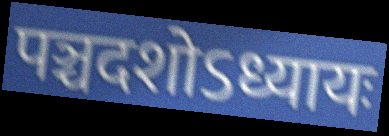
पञ्चदशोऽध्यायः